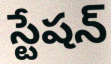
స్టేషన్